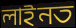
লাইনত